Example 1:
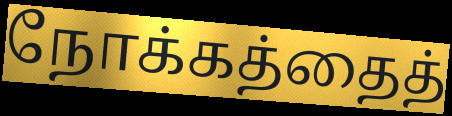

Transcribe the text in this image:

நோக்கத்தைத்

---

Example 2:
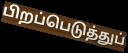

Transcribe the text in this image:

பிறப்பெடுத்துப்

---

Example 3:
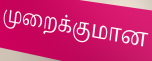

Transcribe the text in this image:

முறைக்குமான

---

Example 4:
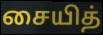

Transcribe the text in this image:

சையித்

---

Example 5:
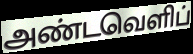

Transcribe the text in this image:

அண்டவெளிப்